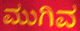
ಮುಗಿವ